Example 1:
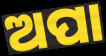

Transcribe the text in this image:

ଅପା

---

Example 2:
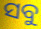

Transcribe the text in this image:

ସବୁ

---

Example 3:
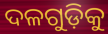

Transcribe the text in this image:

ଦଳଗୁଡ଼ିକୁ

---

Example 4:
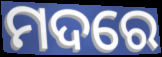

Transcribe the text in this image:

ମଦରେ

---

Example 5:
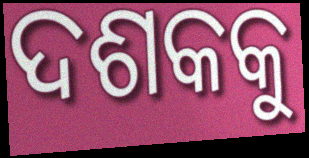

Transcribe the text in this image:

ଦଶକକୁ